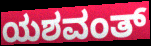
ಯಶವಂತ್